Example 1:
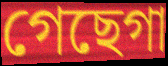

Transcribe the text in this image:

গেছেগা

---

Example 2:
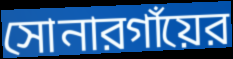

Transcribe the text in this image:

সোনারগাঁয়ের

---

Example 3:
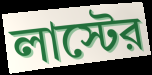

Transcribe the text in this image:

লাস্টের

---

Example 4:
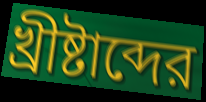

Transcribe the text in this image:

খ্রীষ্টাব্দের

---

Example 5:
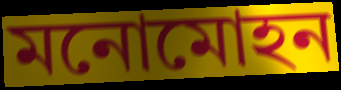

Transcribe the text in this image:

মনোমোহন